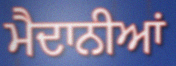
ਮੈਦਾਨੀਆਂ